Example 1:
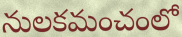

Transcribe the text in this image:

నులకమంచంలో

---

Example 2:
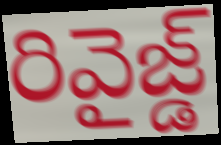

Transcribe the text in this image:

రివైజ్డ్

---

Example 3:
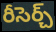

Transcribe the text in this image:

రీసెర్చ్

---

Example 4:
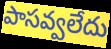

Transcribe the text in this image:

పాసవ్వలేదు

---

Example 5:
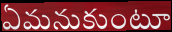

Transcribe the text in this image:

ఏమనుకుంటూ